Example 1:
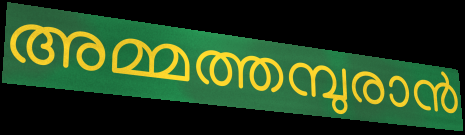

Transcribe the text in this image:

അമ്മത്തമ്പുരാൻ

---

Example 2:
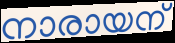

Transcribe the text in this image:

നാരായന്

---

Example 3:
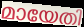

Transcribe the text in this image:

മായേതി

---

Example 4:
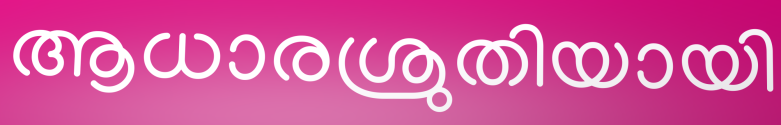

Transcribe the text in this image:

ആധാരശ്രുതിയായി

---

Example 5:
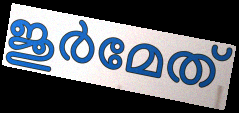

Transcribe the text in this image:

ജുർമേത്